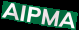
AIPMA